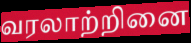
வரலாற்றினை